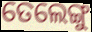
ତେଲେଙ୍ଗୁ